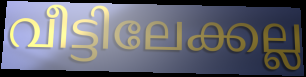
വീട്ടിലേക്കല്ല